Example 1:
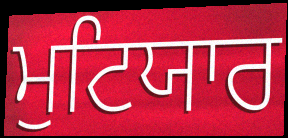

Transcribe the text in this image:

ਮੁਟਿਯਾਰ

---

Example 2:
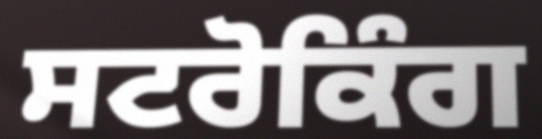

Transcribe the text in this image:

ਸਟਰੋਕਿੰਗ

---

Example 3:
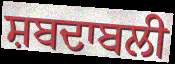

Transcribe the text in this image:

ਸ਼ਬਦਾਬਲੀ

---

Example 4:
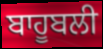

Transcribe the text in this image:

ਬਾਹੂਬਲੀ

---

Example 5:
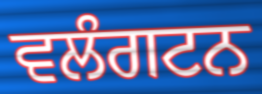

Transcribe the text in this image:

ਵਲੰਗਟਨ